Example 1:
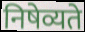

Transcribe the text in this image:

निषेव्यते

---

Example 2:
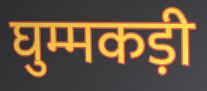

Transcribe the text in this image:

घुम्मकड़ी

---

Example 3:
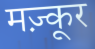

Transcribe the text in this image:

मज़्कूर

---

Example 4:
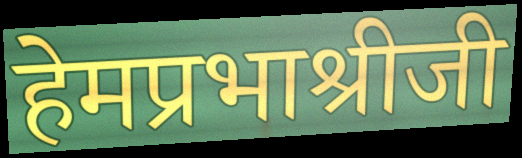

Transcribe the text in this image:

हेमप्रभाश्रीजी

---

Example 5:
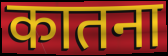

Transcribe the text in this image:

कातना